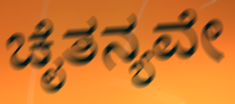
ಚೈತನ್ಯವೇ